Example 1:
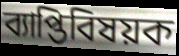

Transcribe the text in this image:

ব্যাপ্তিবিষয়ক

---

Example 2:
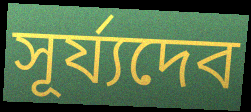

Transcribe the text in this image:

সূর্য্যদেব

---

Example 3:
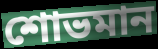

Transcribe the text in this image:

শোভমান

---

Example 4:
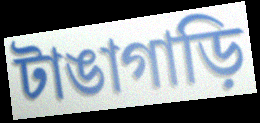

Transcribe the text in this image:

টাঙাগাড়ি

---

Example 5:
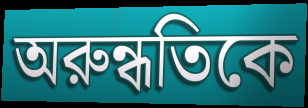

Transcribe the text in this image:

অরুন্ধতিকে